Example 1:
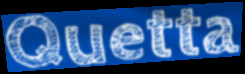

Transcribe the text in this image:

Quetta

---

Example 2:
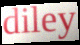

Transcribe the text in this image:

diley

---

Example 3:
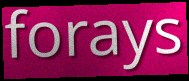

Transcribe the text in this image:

forays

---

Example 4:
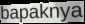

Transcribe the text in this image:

bapaknya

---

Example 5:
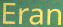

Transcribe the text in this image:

Eran